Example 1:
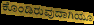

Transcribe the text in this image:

ಕೊಂಡಿರುವುದಾಗಿಯೂ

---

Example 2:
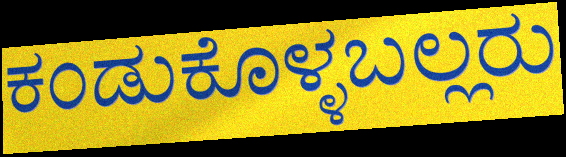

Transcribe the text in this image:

ಕಂಡುಕೊಳ್ಳಬಲ್ಲರು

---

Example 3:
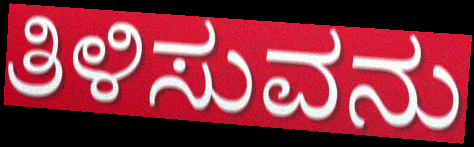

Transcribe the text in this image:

ತಿಳಿಸುವನು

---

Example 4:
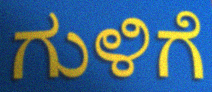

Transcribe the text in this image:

ಗುಳಿಗೆ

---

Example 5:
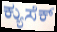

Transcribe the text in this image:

ಕ್ಯುಸೆಕ್